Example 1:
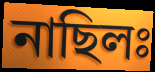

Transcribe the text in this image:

নাছিলঃ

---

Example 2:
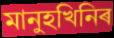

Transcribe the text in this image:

মানুহখিনিৰ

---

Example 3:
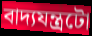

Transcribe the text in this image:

বাদ্যযন্ত্ৰটো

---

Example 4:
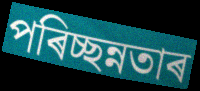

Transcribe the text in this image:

পৰিচ্ছন্নতাৰ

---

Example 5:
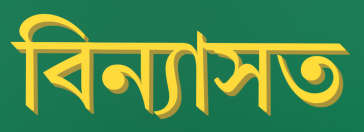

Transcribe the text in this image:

বিন্যাসত